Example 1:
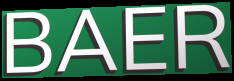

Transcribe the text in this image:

BAER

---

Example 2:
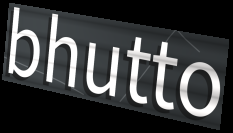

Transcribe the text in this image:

bhutto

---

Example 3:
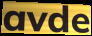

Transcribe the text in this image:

avde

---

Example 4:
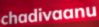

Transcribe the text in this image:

chadivaanu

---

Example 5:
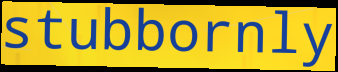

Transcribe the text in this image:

stubbornly